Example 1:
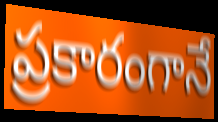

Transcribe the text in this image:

ప్రకారంగానే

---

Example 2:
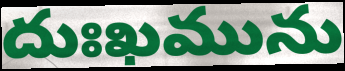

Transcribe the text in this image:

దుఃఖమును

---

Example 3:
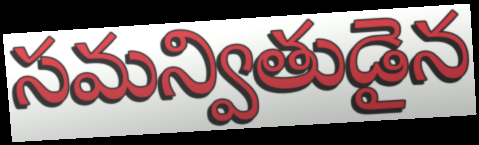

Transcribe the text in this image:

సమన్వితుడైన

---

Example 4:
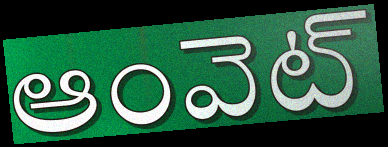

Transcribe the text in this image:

ఆంవెట్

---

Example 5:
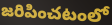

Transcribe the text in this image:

జరిపించటంలో